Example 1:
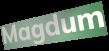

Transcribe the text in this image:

Magdum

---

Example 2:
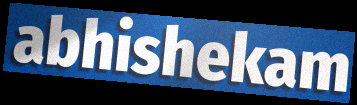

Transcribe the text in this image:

abhishekam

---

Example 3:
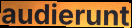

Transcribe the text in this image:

audierunt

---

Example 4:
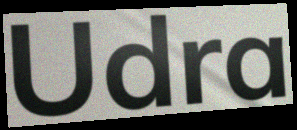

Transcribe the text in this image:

Udra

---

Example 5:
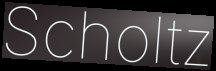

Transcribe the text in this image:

Scholtz